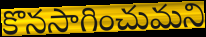
కొనసాగించుమని